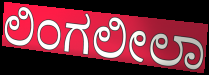
ಲಿಂಗಲೀಲಾ